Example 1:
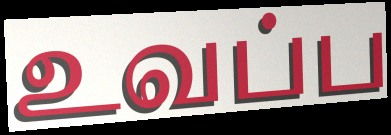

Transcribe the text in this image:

உவப்ப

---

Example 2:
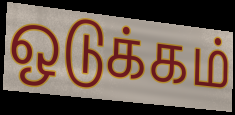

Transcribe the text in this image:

ஒடுக்கம்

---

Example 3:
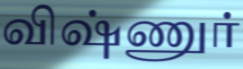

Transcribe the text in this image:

விஷ்ணுர்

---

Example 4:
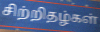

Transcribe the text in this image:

சிற்றிதழ்கள்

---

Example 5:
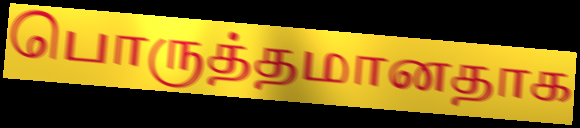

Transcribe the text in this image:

பொருத்தமானதாக